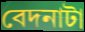
বেদনাটা